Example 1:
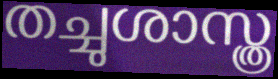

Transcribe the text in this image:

തച്ചുശാസ്ത്ര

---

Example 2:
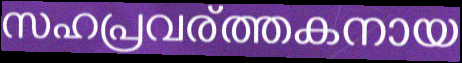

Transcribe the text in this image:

സഹപ്രവര്ത്തകനായ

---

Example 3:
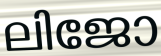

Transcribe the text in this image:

ലിജോ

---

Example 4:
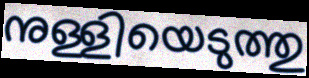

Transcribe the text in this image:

നുള്ളിയെടുത്തു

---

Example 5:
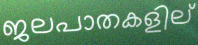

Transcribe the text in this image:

ജലപാതകളില്